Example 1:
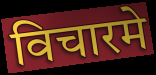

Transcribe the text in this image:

विचारमे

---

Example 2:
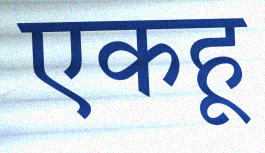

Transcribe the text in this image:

एकहू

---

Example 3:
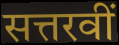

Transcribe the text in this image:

सत्तरवीं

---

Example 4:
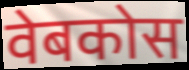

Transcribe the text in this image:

वेबकोस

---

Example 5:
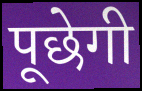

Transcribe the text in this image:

पूछेगी